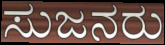
ಸುಜನರು